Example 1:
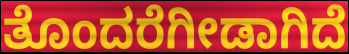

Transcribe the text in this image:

ತೊಂದರೆಗೀಡಾಗಿದೆ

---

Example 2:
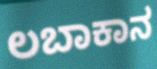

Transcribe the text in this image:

ಲಬಾಕಾನ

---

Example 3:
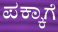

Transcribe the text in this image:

ಪಕ್ಕಾಗೆ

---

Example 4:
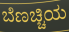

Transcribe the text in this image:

ಬೆಣಚ್ಚಿಯ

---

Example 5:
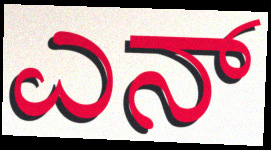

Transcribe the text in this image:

ಎನ್